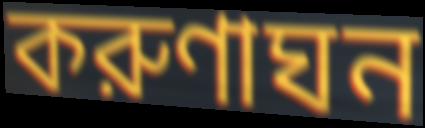
করুণাঘন